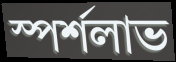
স্পর্শলাভ